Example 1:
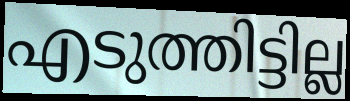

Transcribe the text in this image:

എടുത്തിട്ടില്ല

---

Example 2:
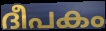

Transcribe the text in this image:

ദീപകം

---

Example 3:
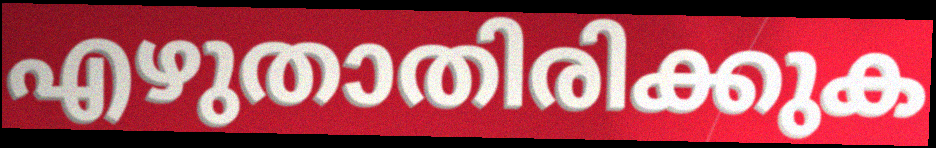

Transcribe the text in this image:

എഴുതാതിരിക്കുക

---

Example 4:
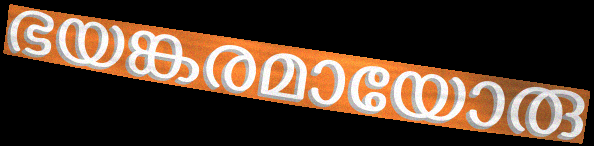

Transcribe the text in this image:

ഭയങ്കരമായോരു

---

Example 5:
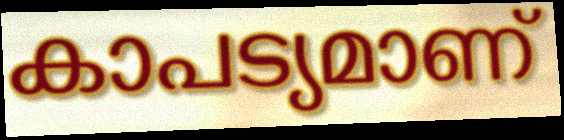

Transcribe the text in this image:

കാപട്യമാണ്